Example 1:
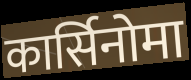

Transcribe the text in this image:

कार्सिनोमा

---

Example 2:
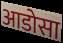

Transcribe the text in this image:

आडोसा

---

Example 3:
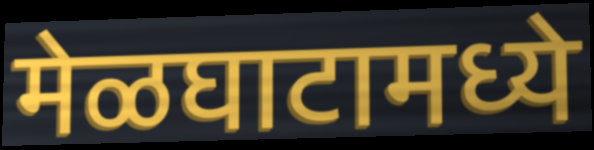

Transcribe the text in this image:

मेळघाटामध्ये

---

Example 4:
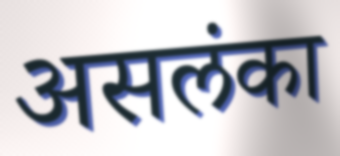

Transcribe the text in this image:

असलंका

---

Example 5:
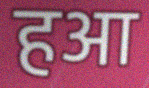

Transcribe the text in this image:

हआ